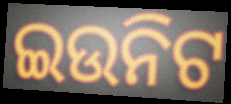
ଇଉନିଟ